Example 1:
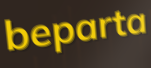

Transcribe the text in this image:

beparta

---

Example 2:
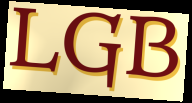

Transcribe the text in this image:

LGB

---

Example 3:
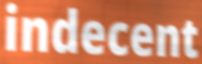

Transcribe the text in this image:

indecent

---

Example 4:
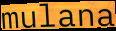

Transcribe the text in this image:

mulana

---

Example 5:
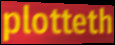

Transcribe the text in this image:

plotteth